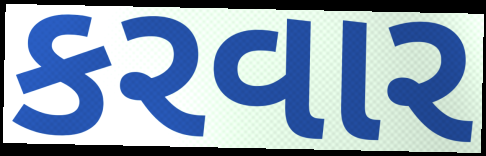
કરવાર